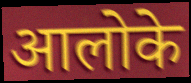
आलोके